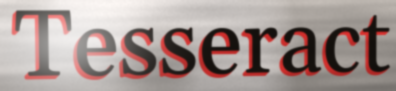
Tesseract